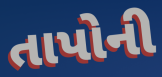
તાપોની